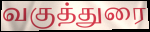
வகுத்துரை